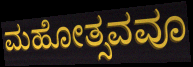
ಮಹೋತ್ಸವವೂ